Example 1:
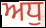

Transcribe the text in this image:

ਅਧੁ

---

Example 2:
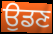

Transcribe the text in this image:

ਉਡਣ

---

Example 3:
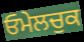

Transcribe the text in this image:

ਓਮੇਲਚੁਕ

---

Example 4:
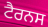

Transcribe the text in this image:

ਟੈਰਨਸ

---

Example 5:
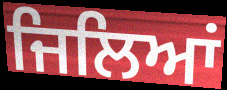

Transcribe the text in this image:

ਜਿਲਿਆਂ